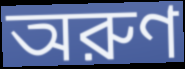
অরুণ